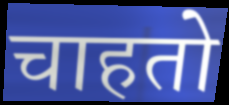
चाहतो